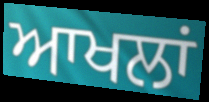
ਆਖਲਾਂ